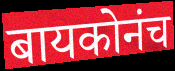
बायकोनंच